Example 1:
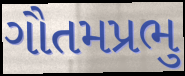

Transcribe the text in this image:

ગૌતમપ્રભુ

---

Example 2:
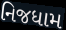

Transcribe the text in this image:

નિજધામ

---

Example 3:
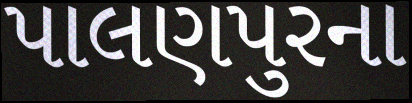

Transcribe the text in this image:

પાલણપુરના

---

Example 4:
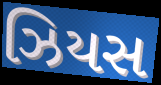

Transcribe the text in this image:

ઝિયસ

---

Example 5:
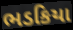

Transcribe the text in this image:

ભડકિયા